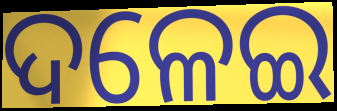
ଦଳେଇ